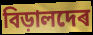
বিড়ালদেৰ